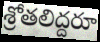
శ్రోతలిద్దరూ